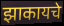
झाकायचे